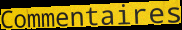
Commentaires